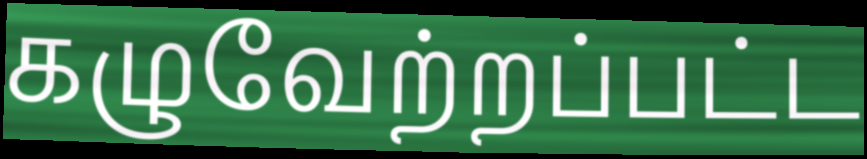
கழுவேற்றப்பட்ட